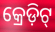
କ୍ରେଡ଼ିଟ୍